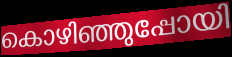
കൊഴിഞ്ഞുപ്പോയി